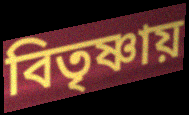
বিতৃষ্ণায়